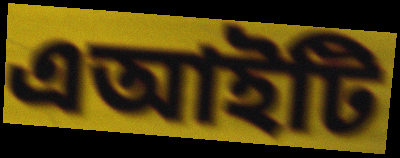
এআইটি